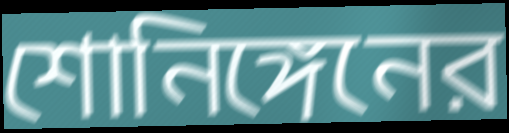
শোনিঙ্গেনের